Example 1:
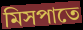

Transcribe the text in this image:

মিসপাতে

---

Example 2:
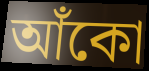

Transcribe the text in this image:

আঁকো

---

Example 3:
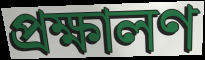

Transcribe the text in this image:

প্রক্ষালণ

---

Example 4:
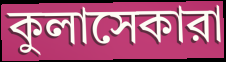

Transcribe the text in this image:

কুলাসেকারা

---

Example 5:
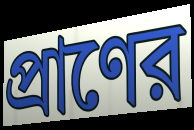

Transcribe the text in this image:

প্রাণের